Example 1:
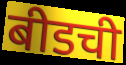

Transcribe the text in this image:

बीडची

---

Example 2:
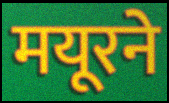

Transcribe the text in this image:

मयूरने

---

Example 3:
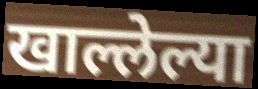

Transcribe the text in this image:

खाल्लेल्या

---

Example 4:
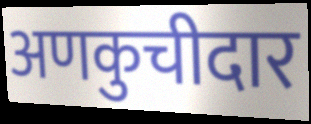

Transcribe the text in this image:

अणकुचीदार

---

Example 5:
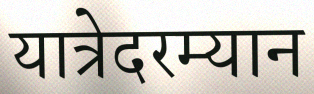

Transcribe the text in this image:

यात्रेदरम्यान